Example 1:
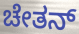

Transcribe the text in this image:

ಚೇತನ್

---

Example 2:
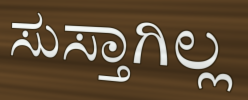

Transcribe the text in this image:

ಸುಸ್ತಾಗಿಲ್ಲ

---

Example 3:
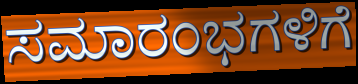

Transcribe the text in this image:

ಸಮಾರಂಭಗಳಿಗೆ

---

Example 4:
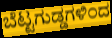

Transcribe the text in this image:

ಬೆಟ್ಟಗುಡ್ಡಗಳಿಂದ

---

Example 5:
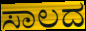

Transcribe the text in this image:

ಸಾಲದ